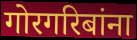
गोरगरिबांना